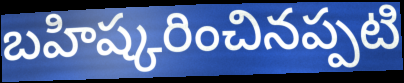
బహిష్కరించినప్పటి